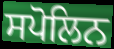
ਸਪੋਲਿਨ